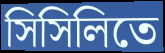
সিসিলিতে